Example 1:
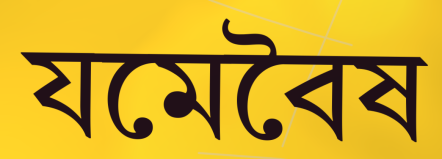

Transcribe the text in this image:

যমেবৈষ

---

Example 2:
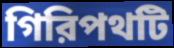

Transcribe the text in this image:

গিরিপথটি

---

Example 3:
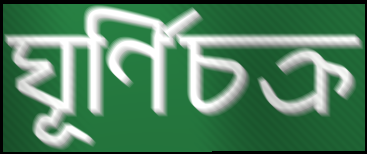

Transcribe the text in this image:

ঘূর্ণিচক্র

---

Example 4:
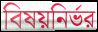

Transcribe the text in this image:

বিষয়নির্ভর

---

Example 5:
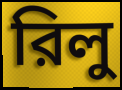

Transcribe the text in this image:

রিলু